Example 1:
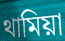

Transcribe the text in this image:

থামিয়া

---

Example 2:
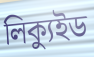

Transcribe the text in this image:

লিক্যুইড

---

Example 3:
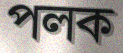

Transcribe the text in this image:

পলক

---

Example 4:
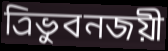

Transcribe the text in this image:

ত্রিভুবনজয়ী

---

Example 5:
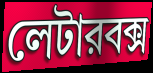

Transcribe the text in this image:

লেটারবক্স